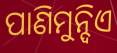
ପାଣିମୁନ୍ଦିଏ